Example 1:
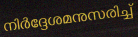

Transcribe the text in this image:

നിർദ്ദേശമനുസരിച്ച്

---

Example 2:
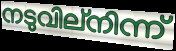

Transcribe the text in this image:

നടുവില്നിന്ന്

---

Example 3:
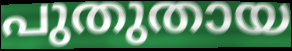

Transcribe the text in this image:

പുതുതായ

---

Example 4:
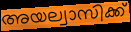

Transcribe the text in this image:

അയല്വാസിക്ക്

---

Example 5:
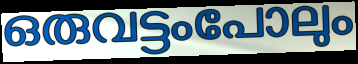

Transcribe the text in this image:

ഒരുവട്ടംപോലും